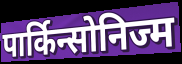
पार्किन्सोनिज्म